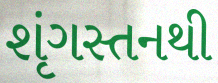
શૃંગસ્તનથી